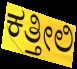
ಕತ್ತೀಲಿ